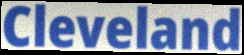
Cleveland